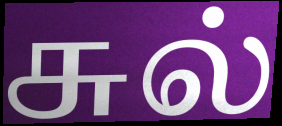
சுல்